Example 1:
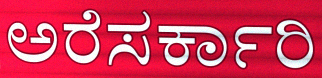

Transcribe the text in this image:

ಅರೆಸರ್ಕಾರಿ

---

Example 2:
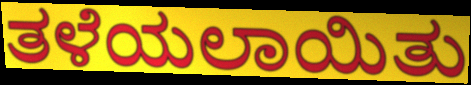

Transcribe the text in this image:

ತಳೆಯಲಾಯಿತು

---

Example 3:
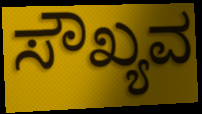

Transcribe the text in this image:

ಸೌಖ್ಯವ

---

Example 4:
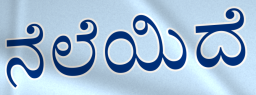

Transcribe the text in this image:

ನೆಲೆಯಿದೆ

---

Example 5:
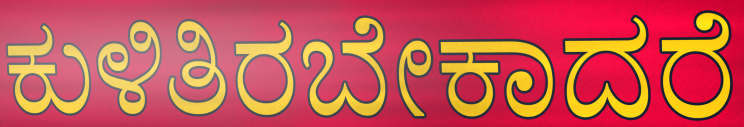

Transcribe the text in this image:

ಕುಳಿತಿರಬೇಕಾದರೆ